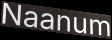
Naanum